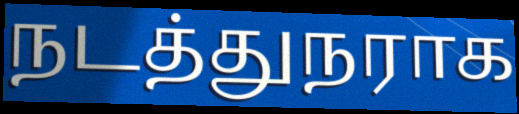
நடத்துநராக